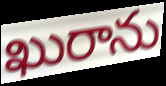
ఖురాను